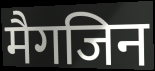
मैगजिन